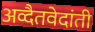
अव्दैतवेदांती